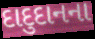
દાદુદાનના